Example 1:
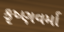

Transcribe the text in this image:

કૃષ્ણવર્મા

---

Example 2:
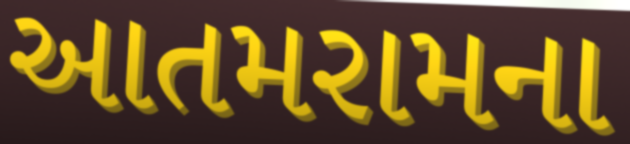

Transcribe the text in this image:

આતમરામના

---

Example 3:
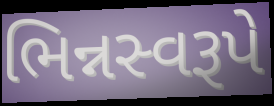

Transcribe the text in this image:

ભિન્નસ્વરૂપે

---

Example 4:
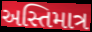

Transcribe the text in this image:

અસ્તિમાત્ર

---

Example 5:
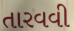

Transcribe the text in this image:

તારવવી